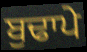
ਬੁਢਾਪੇ